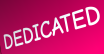
DEDICATED